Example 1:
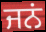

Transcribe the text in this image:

ਜਨਂ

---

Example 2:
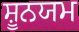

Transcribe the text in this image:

ਸ਼ੂਨਯਮ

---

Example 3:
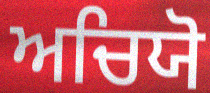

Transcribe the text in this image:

ਅਚਿਯੋ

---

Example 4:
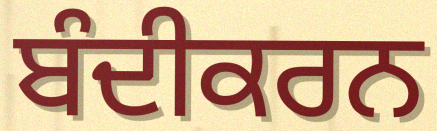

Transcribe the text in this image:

ਬੰਦੀਕਰਨ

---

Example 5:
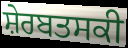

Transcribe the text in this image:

ਸ਼ੇਰਬਤਸਕੀ